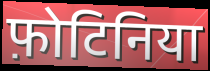
फ़ोटिनिया